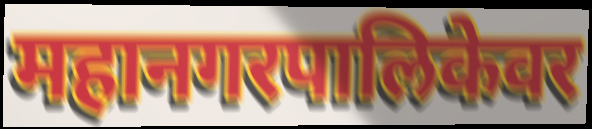
महानगरपालिकेवर